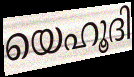
യെഹൂദി